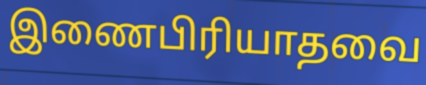
இணைபிரியாதவை